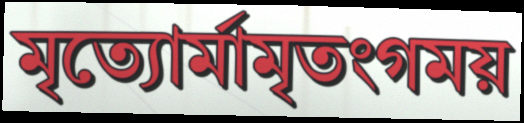
মৃত্যোর্মামৃতংগময়